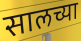
सालच्या